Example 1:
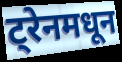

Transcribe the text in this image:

ट्रेनमधून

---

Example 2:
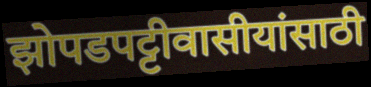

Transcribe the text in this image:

झोपडपट्टीवासीयांसाठी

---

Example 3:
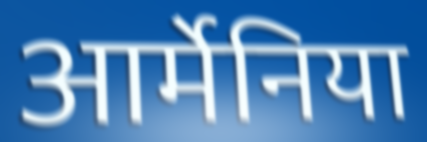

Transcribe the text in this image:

आर्मेनिया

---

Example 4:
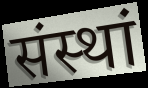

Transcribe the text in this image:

संस्थां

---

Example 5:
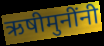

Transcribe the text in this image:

ऋषीमुनींनी